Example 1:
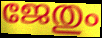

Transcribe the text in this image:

ജേതും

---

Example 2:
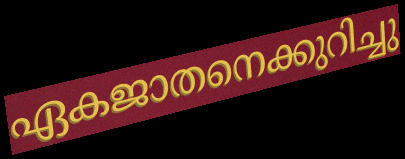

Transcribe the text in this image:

ഏകജാതനെക്കുറിച്ചു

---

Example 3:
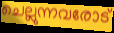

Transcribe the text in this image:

ചെല്ലുന്നവരോട്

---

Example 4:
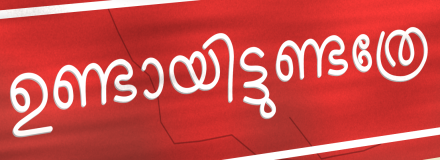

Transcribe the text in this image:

ഉണ്ടായിട്ടുണ്ടത്രേ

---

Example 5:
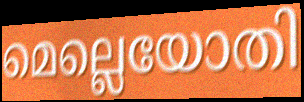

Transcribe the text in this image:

മെല്ലെയോതി